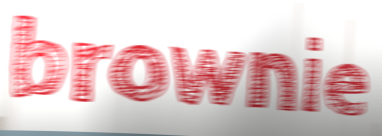
brownie